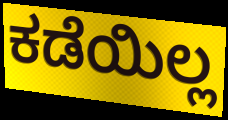
ಕಡೆಯಿಲ್ಲ